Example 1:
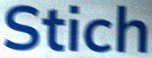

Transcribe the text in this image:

Stich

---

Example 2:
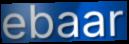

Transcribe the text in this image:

ebaar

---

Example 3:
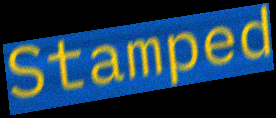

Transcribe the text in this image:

Stamped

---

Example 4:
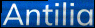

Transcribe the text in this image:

Antilia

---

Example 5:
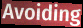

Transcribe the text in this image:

Avoiding